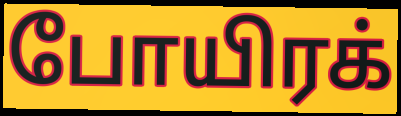
போயிரக்